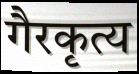
गैरकृत्य